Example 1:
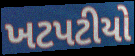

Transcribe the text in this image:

ખટપટીયો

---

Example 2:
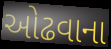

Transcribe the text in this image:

ઓઢવાના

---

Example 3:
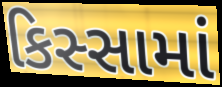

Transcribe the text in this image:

કિસ્સામાં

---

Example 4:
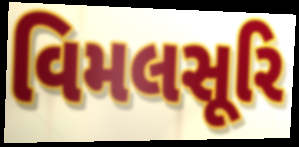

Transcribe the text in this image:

વિમલસૂરિ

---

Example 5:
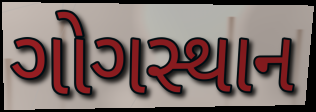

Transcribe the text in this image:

ગોગસ્થાન